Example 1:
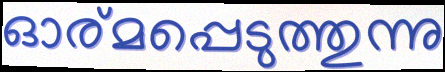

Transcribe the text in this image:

ഓര്മപ്പെടുത്തുന്നു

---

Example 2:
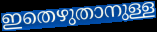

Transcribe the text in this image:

ഇതെഴുതാനുള്ള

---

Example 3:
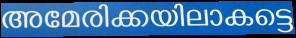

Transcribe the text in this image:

അമേരിക്കയിലാകട്ടെ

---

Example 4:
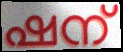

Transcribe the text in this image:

ഷന്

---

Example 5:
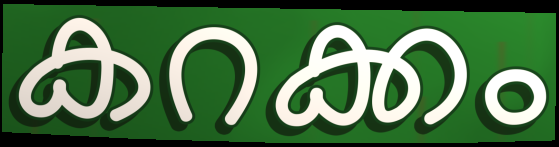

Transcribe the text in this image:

കറക്കം